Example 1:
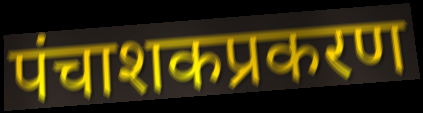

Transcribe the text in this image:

पंचाशकप्रकरण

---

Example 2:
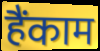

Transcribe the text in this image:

हैंकाम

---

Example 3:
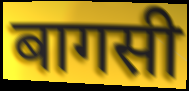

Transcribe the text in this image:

बागसी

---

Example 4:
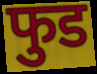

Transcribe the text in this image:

फुड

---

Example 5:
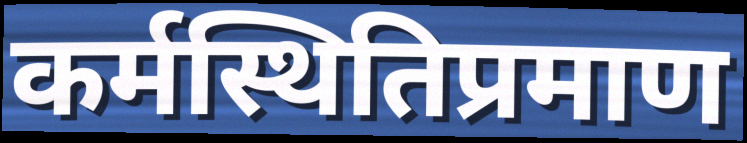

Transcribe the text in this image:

कर्मस्थितिप्रमाण